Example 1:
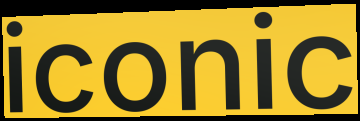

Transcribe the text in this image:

iconic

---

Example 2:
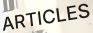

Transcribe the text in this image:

ARTICLES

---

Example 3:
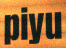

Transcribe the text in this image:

piyu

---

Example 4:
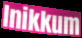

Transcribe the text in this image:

Inikkum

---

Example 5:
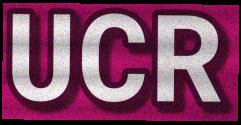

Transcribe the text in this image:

UCR